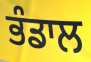
ਭੰਡਾਲ